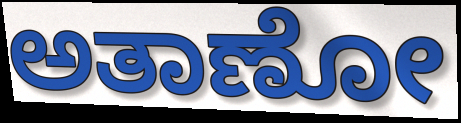
ಅತಾಣೋ